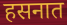
हसनात